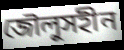
জৌলুসহীন